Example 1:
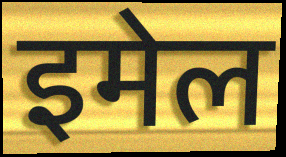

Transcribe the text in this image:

इमेल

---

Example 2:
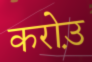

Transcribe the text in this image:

करोउ़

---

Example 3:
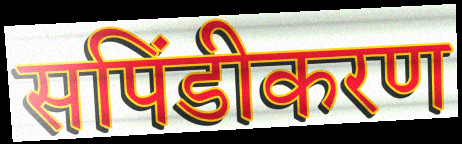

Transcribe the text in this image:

सपिंडीकरण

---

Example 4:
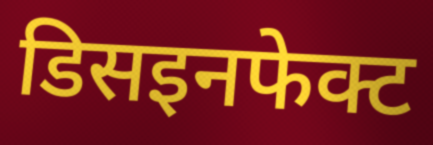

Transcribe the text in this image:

डिसइनफेक्ट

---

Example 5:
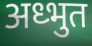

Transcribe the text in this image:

अध्भुत